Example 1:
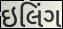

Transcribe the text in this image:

ઇલિંગ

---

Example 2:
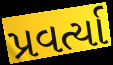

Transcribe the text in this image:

પ્રવર્ત્યા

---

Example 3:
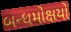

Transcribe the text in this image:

બન્ધમોક્ષયો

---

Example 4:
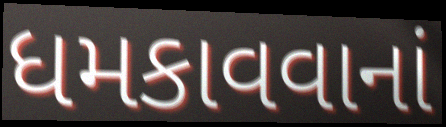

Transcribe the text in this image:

ધમકાવવાનાં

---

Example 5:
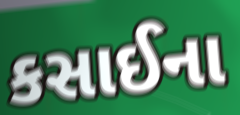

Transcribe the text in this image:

કસાઈના